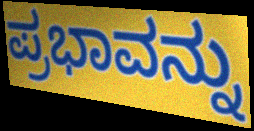
ಪ್ರಭಾವನ್ನು